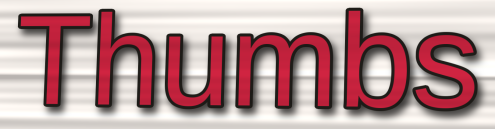
Thumbs